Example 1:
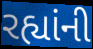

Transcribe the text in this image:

રહ્યાંની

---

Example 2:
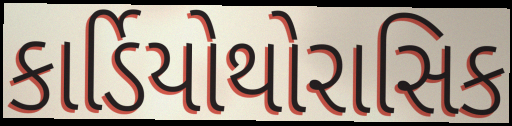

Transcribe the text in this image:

કાર્ડિયોથોરાસિક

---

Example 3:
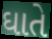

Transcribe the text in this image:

ઘાતે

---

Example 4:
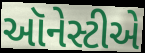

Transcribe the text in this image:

ઑનેસ્ટીએ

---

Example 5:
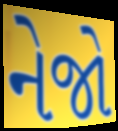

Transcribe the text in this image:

નેજો